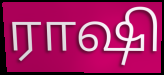
ராஷி